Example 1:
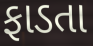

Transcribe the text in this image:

ફાડતા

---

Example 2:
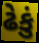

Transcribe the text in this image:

ઢેકું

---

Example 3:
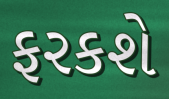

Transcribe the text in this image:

ફરકશે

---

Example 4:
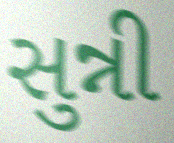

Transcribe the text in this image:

સુન્ની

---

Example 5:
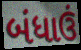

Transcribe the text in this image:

બંધાઉં